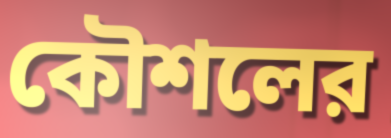
কৌশলের